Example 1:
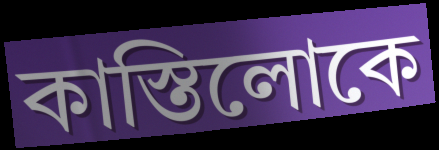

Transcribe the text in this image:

কাস্তিলোকে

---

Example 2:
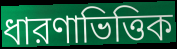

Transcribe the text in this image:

ধারণাভিত্তিক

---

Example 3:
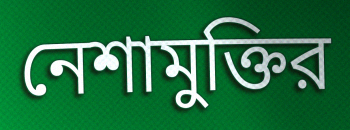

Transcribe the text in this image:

নেশামুক্তির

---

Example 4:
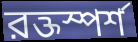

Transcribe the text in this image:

রক্তস্পর্শ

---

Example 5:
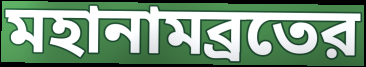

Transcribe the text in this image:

মহানামব্রতের